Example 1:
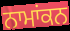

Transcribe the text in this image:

ਨਾਮਾਂਕਨ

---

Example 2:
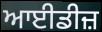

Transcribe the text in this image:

ਆਈਡੀਜ਼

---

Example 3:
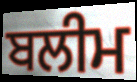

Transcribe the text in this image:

ਬਲੀਮ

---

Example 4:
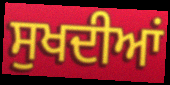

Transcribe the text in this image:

ਸੁਖਦੀਆਂ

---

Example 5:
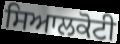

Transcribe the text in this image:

ਸਿਆਲਕੋਟੀ